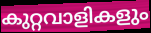
കുറ്റവാളികളും